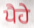
ਪੈਹੇ